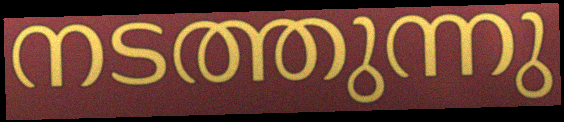
നടത്തുന്നു